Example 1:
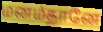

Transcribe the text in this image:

மனம்தானே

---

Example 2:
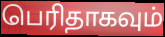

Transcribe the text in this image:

பெரிதாகவும்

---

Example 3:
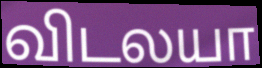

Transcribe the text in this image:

விடலயா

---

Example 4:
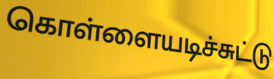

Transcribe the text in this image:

கொள்ளையடிச்சுட்டு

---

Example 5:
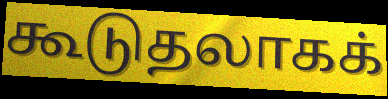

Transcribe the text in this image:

கூடுதலாகக்